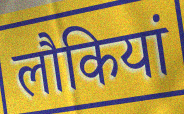
लौकियां